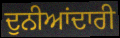
ਦੁਨੀਆਂਦਾਰੀ